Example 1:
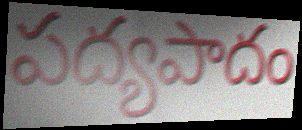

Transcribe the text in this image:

పద్యపాదం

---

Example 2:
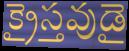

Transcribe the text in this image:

క్రైస్తవుడై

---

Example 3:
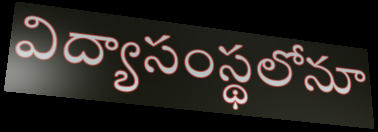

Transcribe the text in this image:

విద్యాసంస్థలోనూ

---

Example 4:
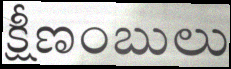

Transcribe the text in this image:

క్షీణంబులు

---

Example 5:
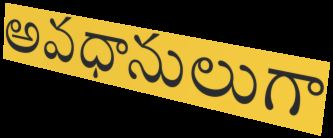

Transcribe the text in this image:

అవధానులుగా